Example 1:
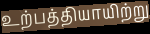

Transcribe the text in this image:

உற்பத்தியாயிற்று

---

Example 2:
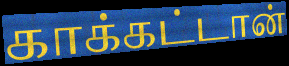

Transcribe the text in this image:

காக்கட்டான்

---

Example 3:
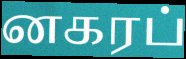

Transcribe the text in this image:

னகரப்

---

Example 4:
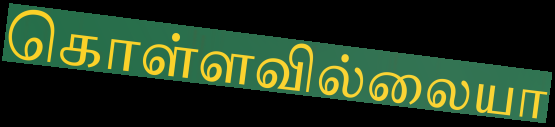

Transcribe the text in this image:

கொள்ளவில்லையா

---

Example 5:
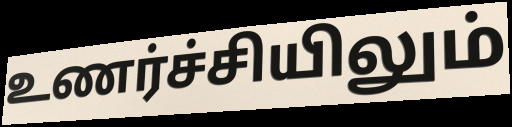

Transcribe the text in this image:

உணர்ச்சியிலும்